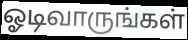
ஓடிவாருங்கள்